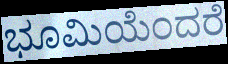
ಭೂಮಿಯೆಂದರೆ